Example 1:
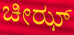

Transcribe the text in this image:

ಚೀಝ್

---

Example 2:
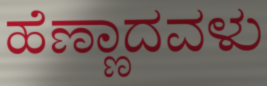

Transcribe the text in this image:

ಹೆಣ್ಣಾದವಳು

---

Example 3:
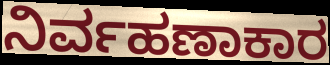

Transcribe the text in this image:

ನಿರ್ವಹಣಾಕಾರ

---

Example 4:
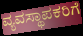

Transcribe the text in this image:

ವ್ಯವಸ್ಥಾಪಕರಿಗೆ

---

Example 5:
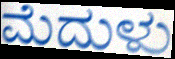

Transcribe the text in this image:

ಮೆದುಳು